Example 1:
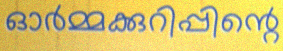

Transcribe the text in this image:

ഓർമ്മക്കുറിപ്പിന്റെ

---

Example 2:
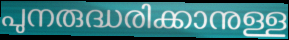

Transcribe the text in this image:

പുനരുദ്ധരിക്കാനുള്ള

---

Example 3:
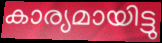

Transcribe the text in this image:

കാര്യമായിട്ടു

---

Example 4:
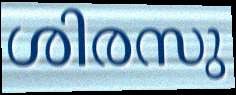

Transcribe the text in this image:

ശിരസു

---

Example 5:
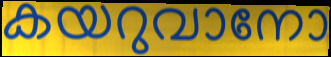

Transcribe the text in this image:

കയറുവാനോ